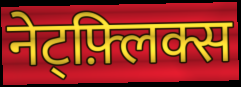
नेट्फ़्लिक्स